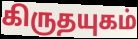
கிருதயுகம்